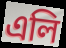
এলি